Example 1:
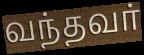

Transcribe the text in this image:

வந்தவர்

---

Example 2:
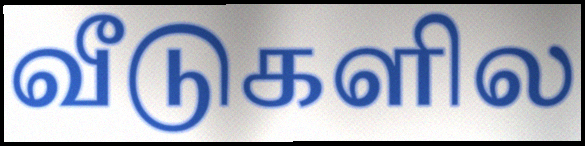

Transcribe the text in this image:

வீடுகளில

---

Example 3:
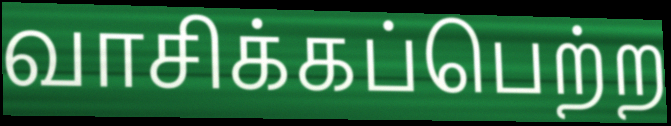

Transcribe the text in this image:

வாசிக்கப்பெற்ற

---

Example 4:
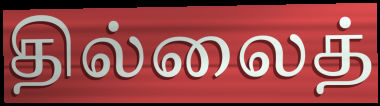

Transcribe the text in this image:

தில்லைத்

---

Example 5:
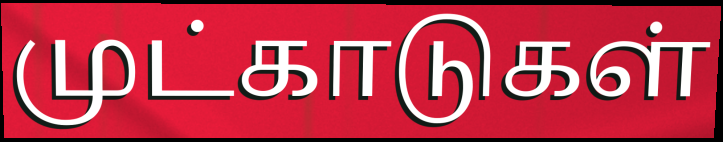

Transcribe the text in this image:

முட்காடுகள்